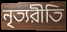
নৃত্যরীতি